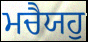
ਮਚੈਯਹੁ